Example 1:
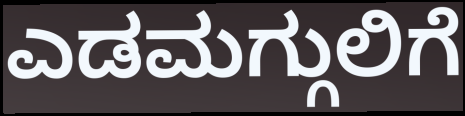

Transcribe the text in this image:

ಎಡಮಗ್ಗುಲಿಗೆ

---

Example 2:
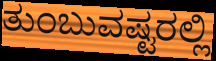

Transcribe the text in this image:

ತುಂಬುವಷ್ಟರಲ್ಲಿ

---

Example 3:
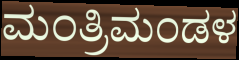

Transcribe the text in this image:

ಮಂತ್ರಿಮಂಡಳ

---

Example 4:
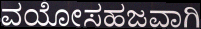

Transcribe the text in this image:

ವಯೋಸಹಜವಾಗಿ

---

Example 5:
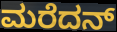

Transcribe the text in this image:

ಮರೆದನ್